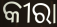
କୀରା